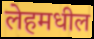
लेहमधील